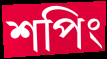
শপিং